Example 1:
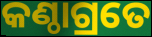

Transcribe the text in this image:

କଣ୍ଠାଗ୍ରତେ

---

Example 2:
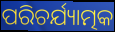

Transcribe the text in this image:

ପରିଚର୍ଯ୍ୟାତ୍ମକ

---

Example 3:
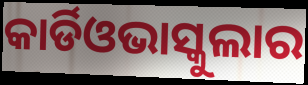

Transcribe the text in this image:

କାର୍ଡିଓଭାସ୍କୁଲାର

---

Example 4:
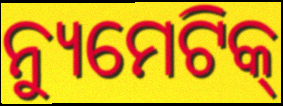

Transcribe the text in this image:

ନ୍ୟୁମେଟିକ୍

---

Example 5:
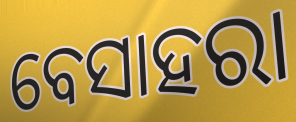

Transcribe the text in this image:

ବେସାହରା